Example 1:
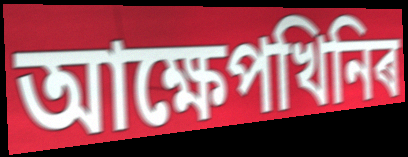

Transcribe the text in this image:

আক্ষেপখিনিৰ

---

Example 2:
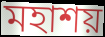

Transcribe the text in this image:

মহাশয়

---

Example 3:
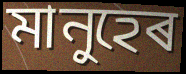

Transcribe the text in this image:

মানুহেৰ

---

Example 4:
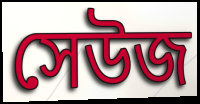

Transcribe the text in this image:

সেউজ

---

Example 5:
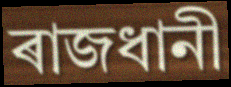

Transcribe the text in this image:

ৰাজধানী